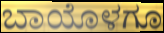
ಬಾಯೊಳಗೂ